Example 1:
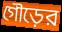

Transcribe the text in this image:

গৌড়ের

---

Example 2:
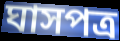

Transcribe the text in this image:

ঘাসপত্র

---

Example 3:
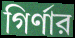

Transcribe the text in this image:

গির্ণার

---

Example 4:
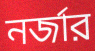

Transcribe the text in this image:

নর্জার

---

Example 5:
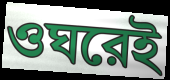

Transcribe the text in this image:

ওঘরেই